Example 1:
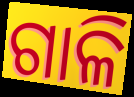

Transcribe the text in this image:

ଗାଳି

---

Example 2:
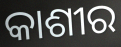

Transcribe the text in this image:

କାଶୀର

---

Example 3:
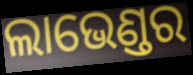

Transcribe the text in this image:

ଲାଭେଣ୍ଡର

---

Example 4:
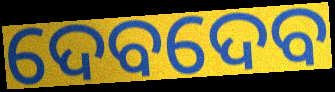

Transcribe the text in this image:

ଦେବଦେବ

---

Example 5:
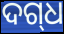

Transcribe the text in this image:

ଦଗ୍‍ଧ